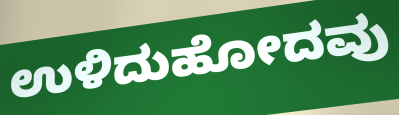
ಉಳಿದುಹೋದವು